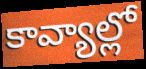
కావ్యాల్లో